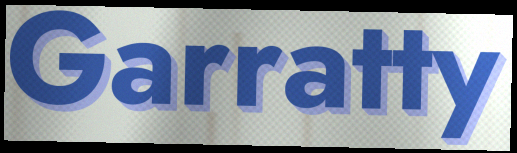
Garratty